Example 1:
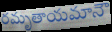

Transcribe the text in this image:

రమృతాయమానౌ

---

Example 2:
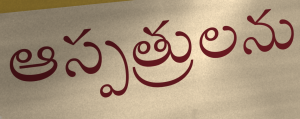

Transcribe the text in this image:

ఆస్పత్రులను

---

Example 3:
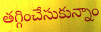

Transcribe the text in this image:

తగ్గించేసుకున్నాం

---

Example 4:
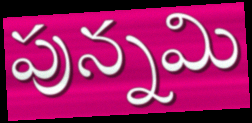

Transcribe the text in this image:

పున్నమి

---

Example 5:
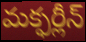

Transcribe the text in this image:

మక్ఫర్లీన్